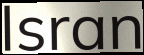
Isran